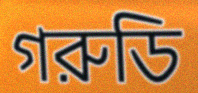
গরুডি